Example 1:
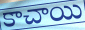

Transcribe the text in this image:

కాచాయి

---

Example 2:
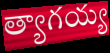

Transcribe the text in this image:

త్యాగయ్య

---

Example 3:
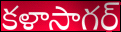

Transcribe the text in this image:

కళాసాగర్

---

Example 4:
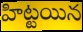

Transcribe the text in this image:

హిట్టయిన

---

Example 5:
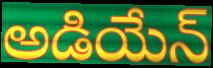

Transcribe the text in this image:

అడియేన్